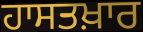
ਹਾਸਤਖ਼ਾਰ